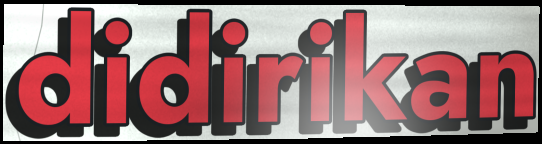
didirikan